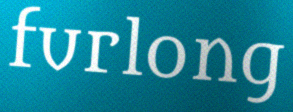
furlong